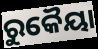
ରୁକୈୟା